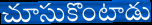
చూసుకొంటాడు